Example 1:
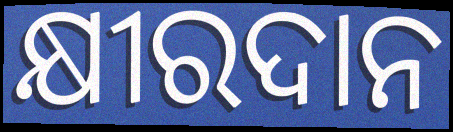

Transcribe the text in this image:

କ୍ଷୀରଦାନ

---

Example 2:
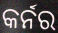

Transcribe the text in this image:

କର୍ନର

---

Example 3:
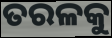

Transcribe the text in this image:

ତରଳକୁ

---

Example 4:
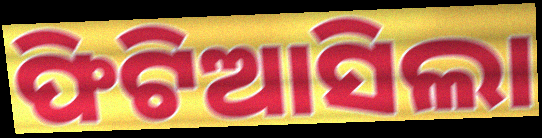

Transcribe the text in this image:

ଫିଟିଆସିଲା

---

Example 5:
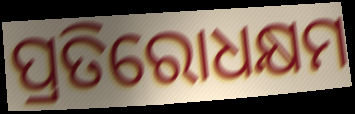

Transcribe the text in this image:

ପ୍ରତିରୋଧକ୍ଷମ